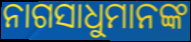
ନାଗସାଧୁମାନଙ୍କ